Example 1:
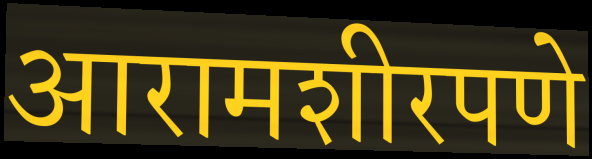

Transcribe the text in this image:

आरामशीरपणे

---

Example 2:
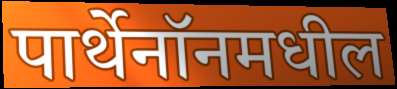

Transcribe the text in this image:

पार्थेनॉनमधील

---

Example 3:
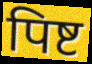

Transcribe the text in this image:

पिष्ट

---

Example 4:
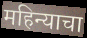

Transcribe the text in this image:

महिन्याचा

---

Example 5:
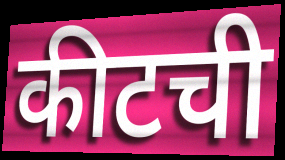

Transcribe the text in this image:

कीटची